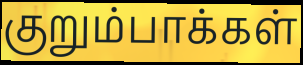
குறும்பாக்கள்